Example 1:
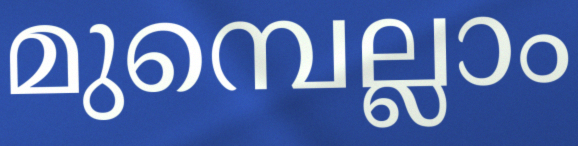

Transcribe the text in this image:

മുമ്പെല്ലാം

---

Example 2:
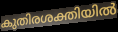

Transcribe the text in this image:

കുതിരശക്തിയിൽ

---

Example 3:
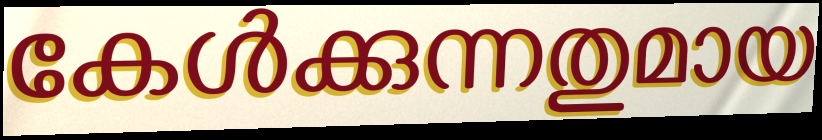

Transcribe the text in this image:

കേൾക്കുന്നതുമായ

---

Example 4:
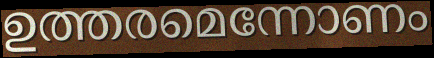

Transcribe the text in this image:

ഉത്തരമെന്നോണം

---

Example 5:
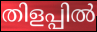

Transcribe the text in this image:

തിളപ്പിൽ